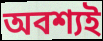
অবশ্যই